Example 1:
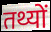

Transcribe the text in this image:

तथ्यों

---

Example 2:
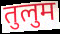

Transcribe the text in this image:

तुलुम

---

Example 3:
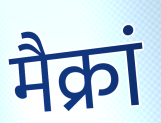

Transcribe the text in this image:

मैक्रां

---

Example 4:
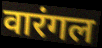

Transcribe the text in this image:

वारंगल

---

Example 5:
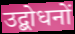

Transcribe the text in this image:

उद्बोधनों